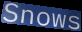
Snows